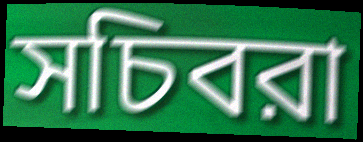
সচিবরা